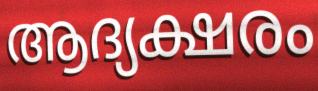
ആദ്യക്ഷരം